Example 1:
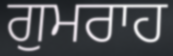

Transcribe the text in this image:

ਗੁਮਰਾਹ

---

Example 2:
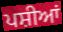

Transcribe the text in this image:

ਪਸ਼ੀਆਂ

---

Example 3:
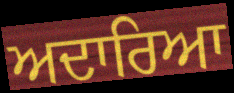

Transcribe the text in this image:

ਅਦਾਰਿਆ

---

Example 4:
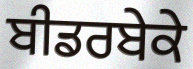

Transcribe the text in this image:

ਬੀਡਰਬੇਕੇ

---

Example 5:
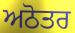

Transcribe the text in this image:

ਅਠੋਤਰ